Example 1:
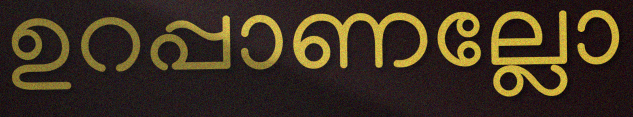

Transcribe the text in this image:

ഉറപ്പാണല്ലോ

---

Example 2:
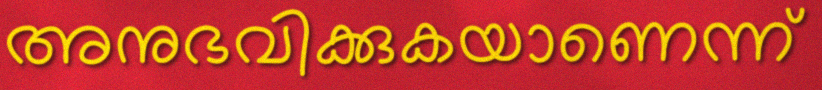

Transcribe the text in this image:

അനുഭവിക്കുകയാണെന്ന്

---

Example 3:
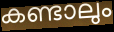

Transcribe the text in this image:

കണ്ടാലും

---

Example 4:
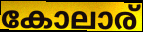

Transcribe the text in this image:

കോലാര്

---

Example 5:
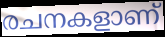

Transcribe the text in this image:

രചനകളാണ്